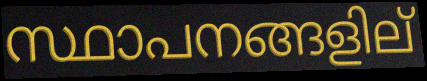
സ്ഥാപനങ്ങളില്